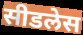
सीडलेस